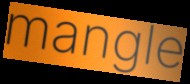
mangle